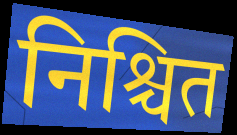
निश्चित